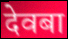
देवबा